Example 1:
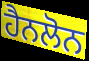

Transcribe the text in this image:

ਹੈਨਲੋਨ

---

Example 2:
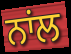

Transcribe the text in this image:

ਨਾਂਲ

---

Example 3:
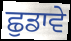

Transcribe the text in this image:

ਛੁਡਾਵੇ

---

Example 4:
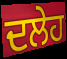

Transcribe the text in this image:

ਦਲੇਹ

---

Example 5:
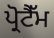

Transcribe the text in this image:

ਪ੍ਰੋਟੈੱਮ